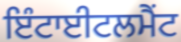
ਇੰਟਾਈਟਲਮੈਂਟ